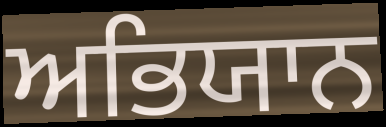
ਅਭਿਯਾਨ